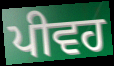
ਪੀਵਹ